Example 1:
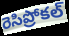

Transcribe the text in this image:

రెసిప్రోకల్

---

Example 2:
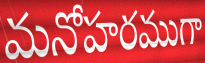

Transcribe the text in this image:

మనోహరముగా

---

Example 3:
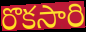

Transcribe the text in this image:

రొకసారి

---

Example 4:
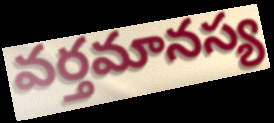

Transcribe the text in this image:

వర్తమానస్య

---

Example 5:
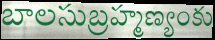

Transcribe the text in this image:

బాలసుబ్రహ్మణ్యంకు